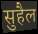
सुहैल